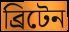
ব্রিটেন